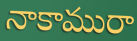
నాకామురా